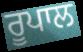
ਰੂਪਾਲ